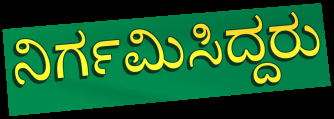
ನಿರ್ಗಮಿಸಿದ್ದರು